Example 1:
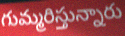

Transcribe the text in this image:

గుమ్మరిస్తున్నారు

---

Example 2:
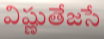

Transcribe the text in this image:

విష్ణుతేజసే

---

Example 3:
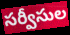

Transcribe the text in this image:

సర్వీసుల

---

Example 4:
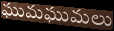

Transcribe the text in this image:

ఘుమఘుమలు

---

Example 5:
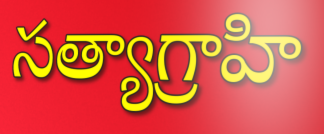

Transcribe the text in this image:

సత్యాగ్రాహి